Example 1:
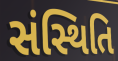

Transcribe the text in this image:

સંસ્થિતિ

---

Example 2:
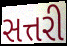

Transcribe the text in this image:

સત્તરી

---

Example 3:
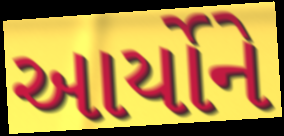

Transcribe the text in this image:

આર્યોને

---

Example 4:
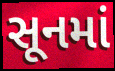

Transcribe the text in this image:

સૂનમાં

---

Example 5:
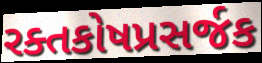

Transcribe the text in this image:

રક્તકોષપ્રસર્જક